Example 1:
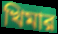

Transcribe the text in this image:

খিমার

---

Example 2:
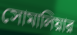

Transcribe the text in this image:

সোমালিয়ার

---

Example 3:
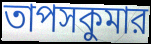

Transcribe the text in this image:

তাপসকুমার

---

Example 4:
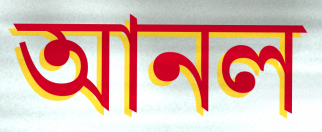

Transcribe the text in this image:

আনল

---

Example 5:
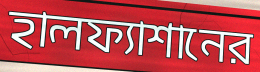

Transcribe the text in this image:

হালফ্যাশানের